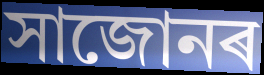
সাজোনৰ